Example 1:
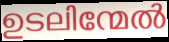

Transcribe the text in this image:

ഉടലിന്മേൽ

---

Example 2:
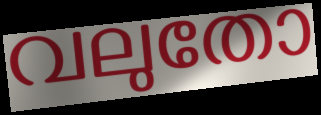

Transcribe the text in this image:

വലുതോ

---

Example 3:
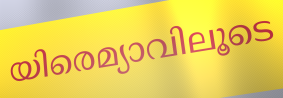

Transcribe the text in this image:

യിരെമ്യാവിലൂടെ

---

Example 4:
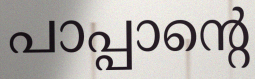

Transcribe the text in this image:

പാപ്പാന്റെ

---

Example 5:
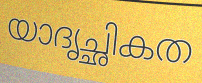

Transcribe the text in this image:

യാദൃച്ഛികത